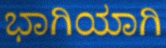
ಭಾಗಿಯಾಗಿ